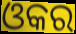
ଓକର